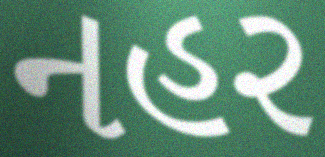
નહર